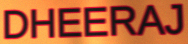
DHEERAJ